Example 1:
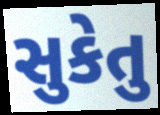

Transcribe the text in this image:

સુકેતુ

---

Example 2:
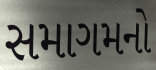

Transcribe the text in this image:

સમાગમનો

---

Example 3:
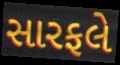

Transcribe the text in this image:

સારફલે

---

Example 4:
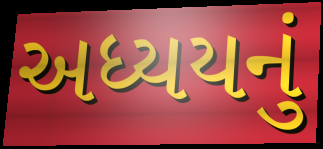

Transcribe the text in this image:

અધ્યયનું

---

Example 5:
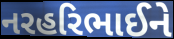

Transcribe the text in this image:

નરહરિભાઈને